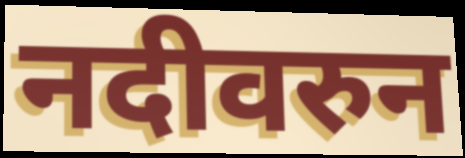
नदीवरुन